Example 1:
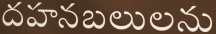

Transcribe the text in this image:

దహనబలులను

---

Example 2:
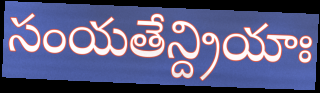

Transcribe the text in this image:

సంయతేన్ద్రియాః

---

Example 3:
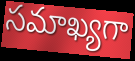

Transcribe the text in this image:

సమాఖ్యగా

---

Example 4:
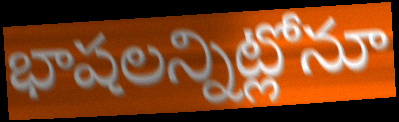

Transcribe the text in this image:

భాషలన్నిట్లోనూ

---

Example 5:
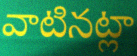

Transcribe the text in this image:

వాటినట్లా